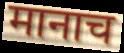
मानाच